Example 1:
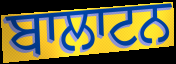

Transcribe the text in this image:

ਬਾਲਾਟਨ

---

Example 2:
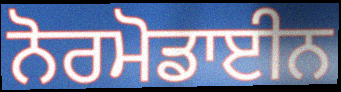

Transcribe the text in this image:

ਨੋਰਮੋਡਾਈਨ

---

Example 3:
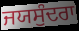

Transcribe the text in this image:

ਜਯਸੁੰਦਰਾ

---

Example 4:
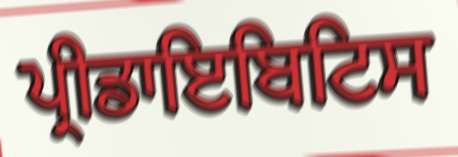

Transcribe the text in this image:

ਪ੍ਰੀਡਾਇਬਿਟਿਸ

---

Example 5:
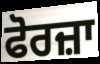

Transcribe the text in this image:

ਫੋਰਜ਼ਾ